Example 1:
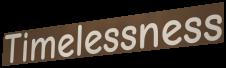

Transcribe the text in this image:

Timelessness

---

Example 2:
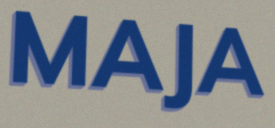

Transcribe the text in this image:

MAJA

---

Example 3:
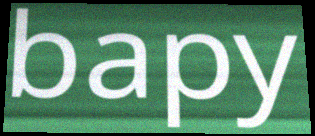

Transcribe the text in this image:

bapy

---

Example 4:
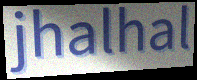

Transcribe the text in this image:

jhalhal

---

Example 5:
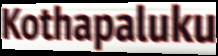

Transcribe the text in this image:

Kothapaluku